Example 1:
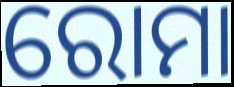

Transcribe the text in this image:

ରୋମା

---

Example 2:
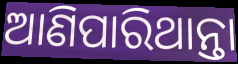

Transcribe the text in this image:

ଆଣିପାରିଥାନ୍ତା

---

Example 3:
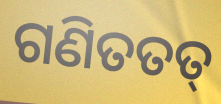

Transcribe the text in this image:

ଗଣିତତତ୍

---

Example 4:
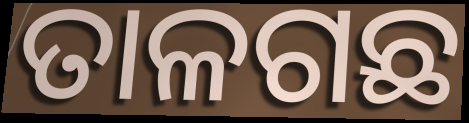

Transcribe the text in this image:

ତାଳଗଛ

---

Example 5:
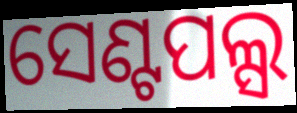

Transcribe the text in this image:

ସେଣ୍ଟପଲ୍ସ